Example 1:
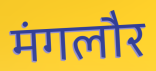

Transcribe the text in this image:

मंगलौर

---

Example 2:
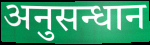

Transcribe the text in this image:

अनुसन्धान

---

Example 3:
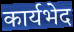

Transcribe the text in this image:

कार्यभेद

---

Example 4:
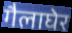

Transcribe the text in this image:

गैलाघेर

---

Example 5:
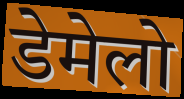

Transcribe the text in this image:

डेमेलो